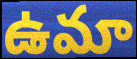
ఉమా